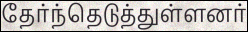
தேர்ந்தெடுத்துள்ளனர்